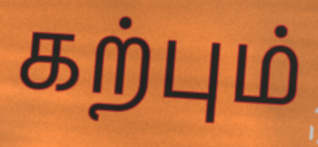
கற்பும்